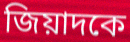
জিয়াদকে